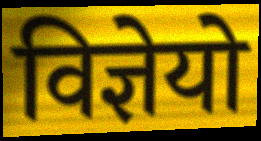
विज्ञेयो